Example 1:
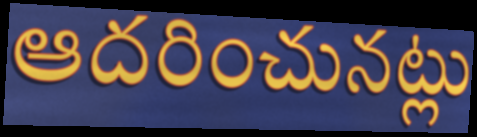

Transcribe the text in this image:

ఆదరించునట్లు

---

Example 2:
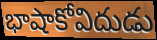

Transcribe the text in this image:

భాషాకోవిదుడు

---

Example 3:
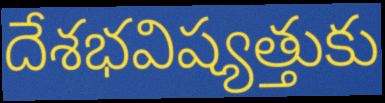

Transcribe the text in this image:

దేశభవిష్యత్తుకు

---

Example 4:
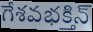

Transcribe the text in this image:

గేశవభక్తిన్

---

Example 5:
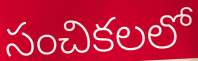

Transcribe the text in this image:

సంచికలలో